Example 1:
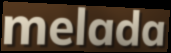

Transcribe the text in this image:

melada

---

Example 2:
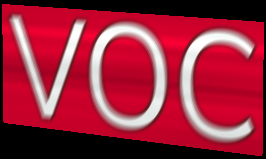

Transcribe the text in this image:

VOC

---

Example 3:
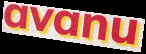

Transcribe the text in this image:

avanu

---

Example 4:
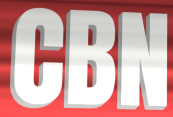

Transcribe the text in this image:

CBN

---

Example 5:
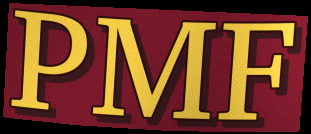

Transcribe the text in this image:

PMF